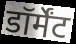
डॉर्मेंट